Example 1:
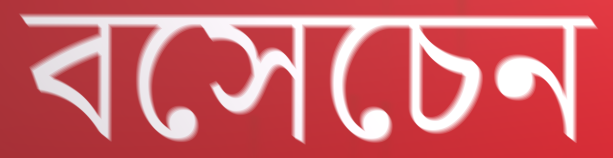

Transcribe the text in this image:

বসেচেন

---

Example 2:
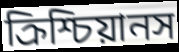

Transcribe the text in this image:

ক্রিশ্চিয়ানস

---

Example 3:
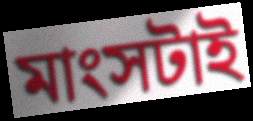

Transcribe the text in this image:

মাংসটাই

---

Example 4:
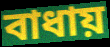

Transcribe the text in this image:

বাধায়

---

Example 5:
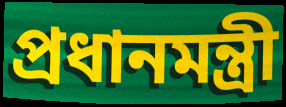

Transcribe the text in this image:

প্রধানমন্ত্রী